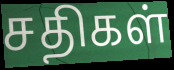
சதிகள்